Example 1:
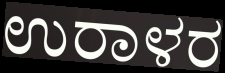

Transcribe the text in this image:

ಉರಾಳರ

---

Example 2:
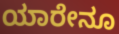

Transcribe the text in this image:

ಯಾರೇನೂ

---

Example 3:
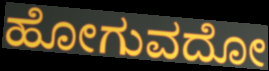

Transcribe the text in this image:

ಹೋಗುವದೋ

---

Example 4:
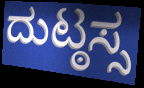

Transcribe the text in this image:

ದುಟ್ಠಸ್ಸ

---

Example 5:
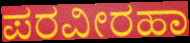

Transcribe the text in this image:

ಪರವೀರಹಾ